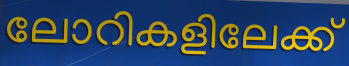
ലോറികളിലേക്ക്